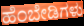
ಹೆಂಬೇಡಿಗಳು